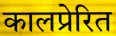
कालप्रेरित